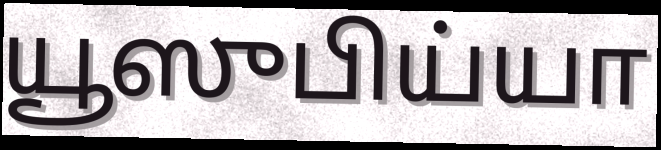
யூஸுபிய்யா